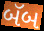
બૅબ